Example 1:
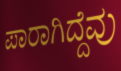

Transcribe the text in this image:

ಪಾರಾಗಿದ್ದೆವು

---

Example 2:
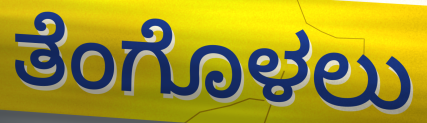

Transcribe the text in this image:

ತೆಂಗೊಳಲು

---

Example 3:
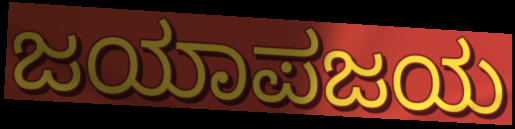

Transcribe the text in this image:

ಜಯಾಪಜಯ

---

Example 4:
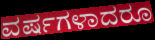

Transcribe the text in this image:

ವರ್ಷಗಳಾದರೂ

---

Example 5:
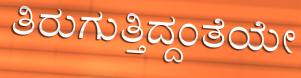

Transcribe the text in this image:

ತಿರುಗುತ್ತಿದ್ದಂತೆಯೇ